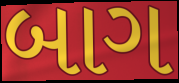
બાગ